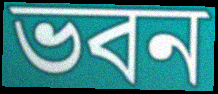
ভবন